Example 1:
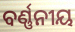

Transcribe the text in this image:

ବର୍ଣ୍ଣନୀୟ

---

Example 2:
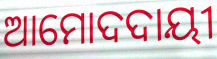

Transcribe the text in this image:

ଆମୋଦଦାୟୀ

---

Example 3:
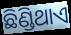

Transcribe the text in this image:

ଛିଣ୍ଡିଥାଏ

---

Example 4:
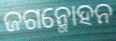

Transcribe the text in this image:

ଜଗନ୍ମୋହନ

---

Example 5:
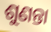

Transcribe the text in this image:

ଶୁଣନ୍ତା